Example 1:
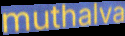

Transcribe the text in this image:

muthalva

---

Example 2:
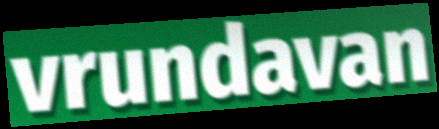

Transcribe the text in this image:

vrundavan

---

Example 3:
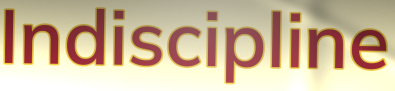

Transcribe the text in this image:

Indiscipline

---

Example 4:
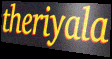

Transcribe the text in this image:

theriyala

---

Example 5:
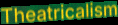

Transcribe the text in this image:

Theatricalism